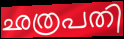
ഛത്രപതി